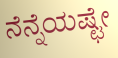
ನೆನ್ನೆಯಷ್ಟೇ